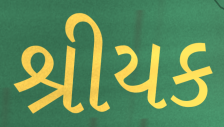
શ્રીયક